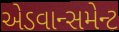
એડવાન્સમેન્ટ